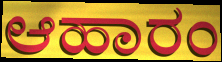
ಆಹಾರಂ